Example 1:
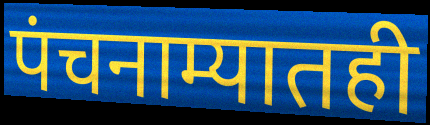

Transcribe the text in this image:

पंचनाम्यातही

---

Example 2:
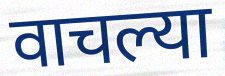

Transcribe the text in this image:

वाचल्या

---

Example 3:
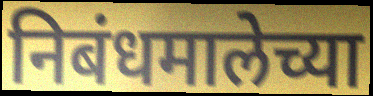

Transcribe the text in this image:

निबंधमालेच्या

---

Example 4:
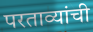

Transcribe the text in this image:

परताव्यांची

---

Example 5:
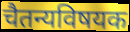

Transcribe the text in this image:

चैतन्यविषयक